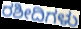
ರಶೀದಿಗಳು